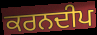
ਕਰਨਦੀਪ